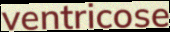
ventricose